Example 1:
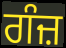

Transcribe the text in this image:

ਗੰਜ਼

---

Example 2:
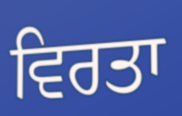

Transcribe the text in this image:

ਵਿਰਤਾ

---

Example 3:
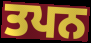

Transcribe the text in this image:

ਤਪਨ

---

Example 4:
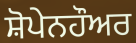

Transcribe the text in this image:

ਸ਼ੋਪੇਨਹੌਅਰ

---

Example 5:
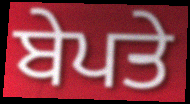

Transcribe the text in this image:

ਬੇਪਤੇ